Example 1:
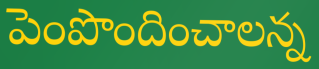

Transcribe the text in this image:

పెంపొందించాలన్న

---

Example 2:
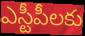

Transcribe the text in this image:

ఎస్టీపీలకు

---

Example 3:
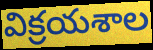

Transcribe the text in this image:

విక్రయశాల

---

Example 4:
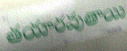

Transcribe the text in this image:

తయారవుతాయి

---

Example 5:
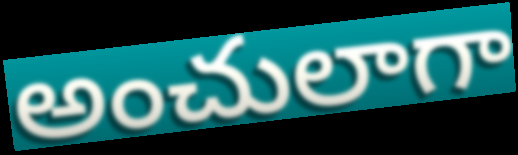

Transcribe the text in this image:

అంచులాగా